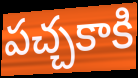
పచ్చకాకి